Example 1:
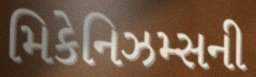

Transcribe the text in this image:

મિકેનિઝમ્સની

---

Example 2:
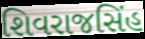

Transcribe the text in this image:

શિવરાજસિંહ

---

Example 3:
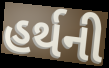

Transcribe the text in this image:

હર્થની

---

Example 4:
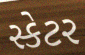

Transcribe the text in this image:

સ્કેટર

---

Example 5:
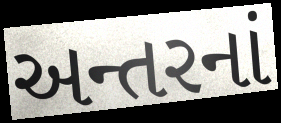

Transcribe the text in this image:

અન્તરનાં